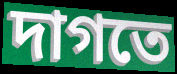
দাগতে